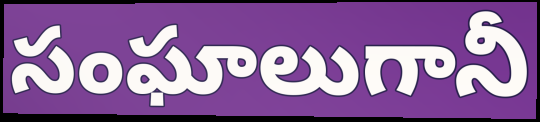
సంఘాలుగానీ